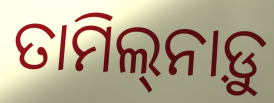
ତାମିଲ୍‌ନାଡ଼ୁ